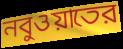
নবুওয়াতের